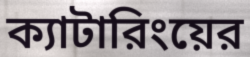
ক্যাটারিংয়ের